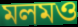
মলমও